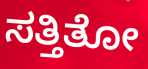
ಸತ್ತಿತೋ